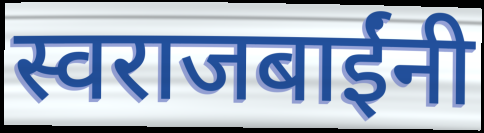
स्वराजबाईंनी